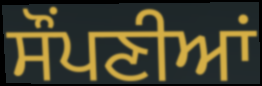
ਸੌਂਪਣੀਆਂ